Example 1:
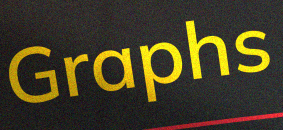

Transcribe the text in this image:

Graphs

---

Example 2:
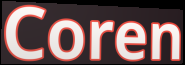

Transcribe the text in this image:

Coren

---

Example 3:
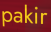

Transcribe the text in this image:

pakir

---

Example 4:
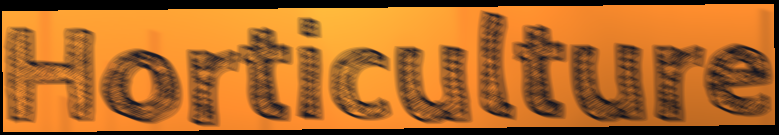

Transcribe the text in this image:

Horticulture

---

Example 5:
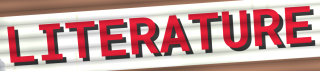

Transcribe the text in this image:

LITERATURE